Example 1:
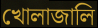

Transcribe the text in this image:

খোলাজালি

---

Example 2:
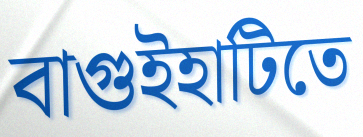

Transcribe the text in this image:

বাগুইহাটিতে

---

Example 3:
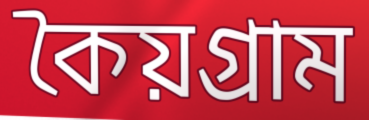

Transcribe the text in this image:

কৈয়গ্রাম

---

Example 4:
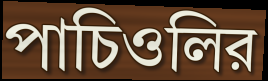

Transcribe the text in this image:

পাচিওলির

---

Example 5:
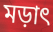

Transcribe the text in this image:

মড়াৎ